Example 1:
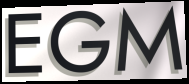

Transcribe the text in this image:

EGM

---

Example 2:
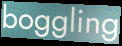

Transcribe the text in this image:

boggling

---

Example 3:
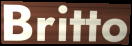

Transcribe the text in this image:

Britto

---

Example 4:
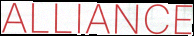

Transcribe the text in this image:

ALLIANCE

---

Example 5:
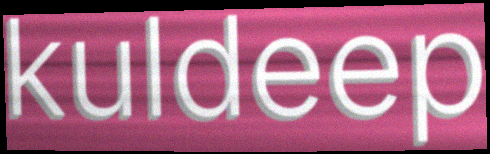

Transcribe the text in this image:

kuldeep